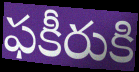
ఫకీరుకి